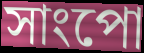
সাংপো